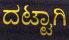
ದಟ್ಟಾಗಿ